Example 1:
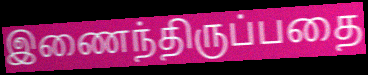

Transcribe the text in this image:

இணைந்திருப்பதை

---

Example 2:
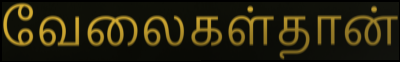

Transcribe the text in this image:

வேலைகள்தான்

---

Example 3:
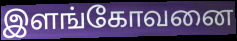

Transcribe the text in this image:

இளங்கோவனை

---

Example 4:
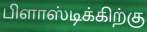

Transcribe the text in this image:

பிளாஸ்டிக்கிற்கு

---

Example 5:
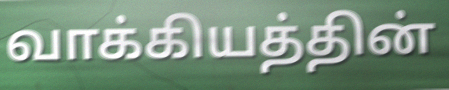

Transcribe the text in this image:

வாக்கியத்தின்